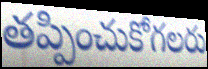
తప్పించుకోగలరు